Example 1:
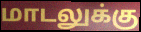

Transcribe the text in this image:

மாடலுக்கு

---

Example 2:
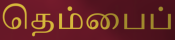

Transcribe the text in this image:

தெம்பைப்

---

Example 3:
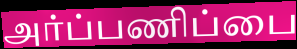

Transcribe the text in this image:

அர்ப்பணிப்பை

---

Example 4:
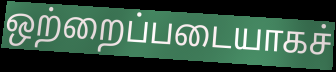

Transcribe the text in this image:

ஒற்றைப்படையாகச்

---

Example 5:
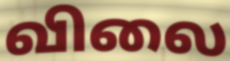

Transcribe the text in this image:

விலை